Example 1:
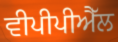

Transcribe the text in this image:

ਵੀਪੀਪੀਐੱਲ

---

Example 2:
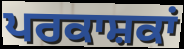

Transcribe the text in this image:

ਪਰਕਾਸ਼ਕਾਂ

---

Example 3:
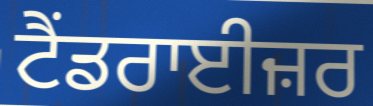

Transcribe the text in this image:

ਟੈਂਡਰਾਈਜ਼ਰ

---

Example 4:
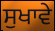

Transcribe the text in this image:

ਸੁਖਾਵੇ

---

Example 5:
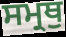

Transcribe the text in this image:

ਸਮ੍ਰਥੁ